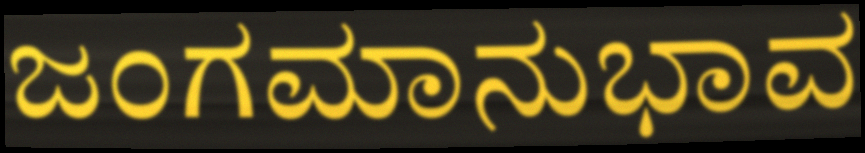
ಜಂಗಮಾನುಭಾವ